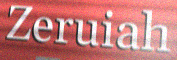
Zeruiah